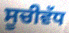
ਸੂਚੀਵੱਧ